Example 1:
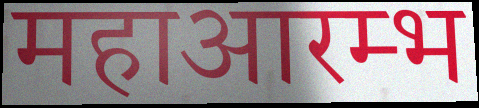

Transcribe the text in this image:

महाआरम्भ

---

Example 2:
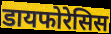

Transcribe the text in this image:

डायफोरेसिस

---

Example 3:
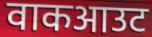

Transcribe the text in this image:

वाकआउट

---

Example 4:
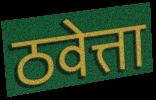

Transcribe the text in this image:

ठवेत्ता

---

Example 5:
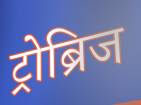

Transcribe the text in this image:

ट्रोब्रिज